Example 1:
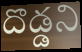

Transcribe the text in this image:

దొడ్డని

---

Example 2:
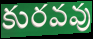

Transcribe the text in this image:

కురవవు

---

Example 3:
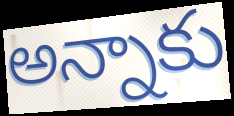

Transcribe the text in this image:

అన్నాకు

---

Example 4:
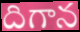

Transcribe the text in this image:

దిగాన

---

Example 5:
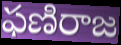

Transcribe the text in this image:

ఫణిరాజ